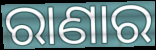
ରାଣାର